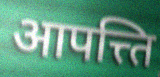
आपत्त्ति